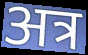
अत्र